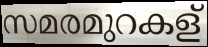
സമരമുറകള്